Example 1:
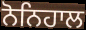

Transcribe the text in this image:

ਨੋਨਿਹਾਲ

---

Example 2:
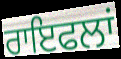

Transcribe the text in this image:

ਰਾਇਫਲਾਂ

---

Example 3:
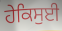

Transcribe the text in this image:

ਹੇਕਿਸੁਈ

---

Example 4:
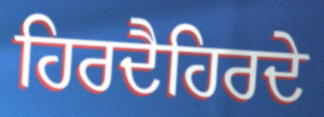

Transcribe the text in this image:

ਹਿਰਦੈਹਿਰਦੇ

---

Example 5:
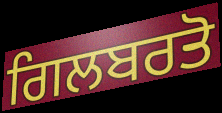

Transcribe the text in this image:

ਗਿਲਬਰਤੋ